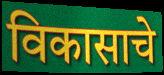
विकासाचे